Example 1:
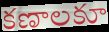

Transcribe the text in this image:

కణాలకూ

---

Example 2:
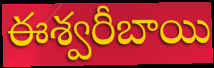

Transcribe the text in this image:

ఈశ్వరీబాయి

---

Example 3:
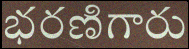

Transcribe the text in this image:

భరణిగారు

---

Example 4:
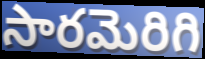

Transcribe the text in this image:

సారమెరిగి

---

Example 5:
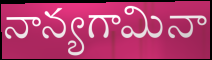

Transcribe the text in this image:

నాన్యగామినా